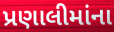
પ્રણાલીમાંના